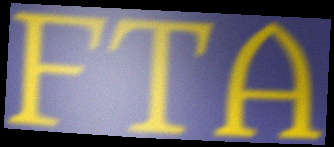
FTA